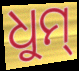
ଧୁମ୍